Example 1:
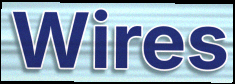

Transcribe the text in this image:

Wires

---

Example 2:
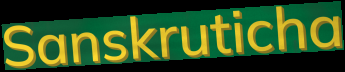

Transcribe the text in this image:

Sanskruticha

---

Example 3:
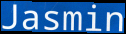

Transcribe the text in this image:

Jasmin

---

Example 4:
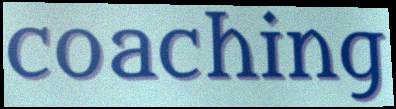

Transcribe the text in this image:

coaching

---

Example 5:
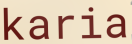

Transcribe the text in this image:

karia